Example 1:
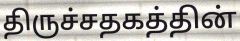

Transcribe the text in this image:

திருச்சதகத்தின்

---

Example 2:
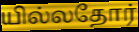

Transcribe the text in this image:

யில்லதோர்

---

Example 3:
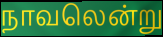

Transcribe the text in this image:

நாவலென்று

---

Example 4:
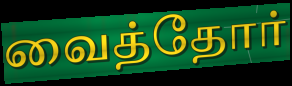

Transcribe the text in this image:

வைத்தோர்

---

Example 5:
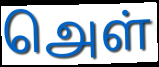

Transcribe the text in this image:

அெள்